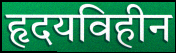
हृदयविहीन